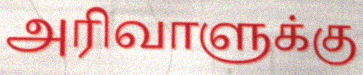
அரிவாளுக்கு